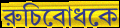
রুচিবোধকে